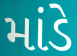
માંડે